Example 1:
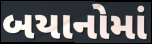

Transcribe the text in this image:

બયાનોમાં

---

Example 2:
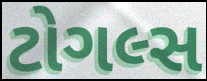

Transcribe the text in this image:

ટોગલ્સ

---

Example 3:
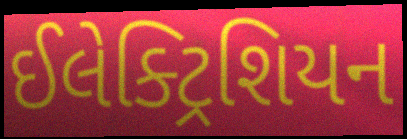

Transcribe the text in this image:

ઈલેક્ટ્રિશિયન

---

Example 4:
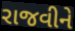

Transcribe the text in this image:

રાજવીને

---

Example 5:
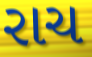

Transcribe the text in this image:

રાચ